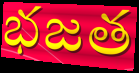
భజత